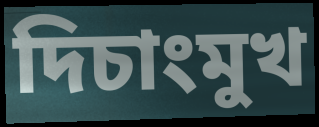
দিচাংমুখ